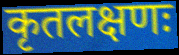
कृतलक्षणः